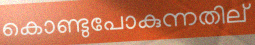
കൊണ്ടുപോകുന്നതില്